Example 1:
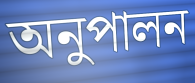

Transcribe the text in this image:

অনুপালন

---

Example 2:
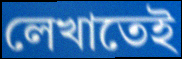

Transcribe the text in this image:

লেখাতেই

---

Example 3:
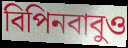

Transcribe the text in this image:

বিপিনবাবুও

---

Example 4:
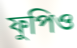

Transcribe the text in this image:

ফুপিও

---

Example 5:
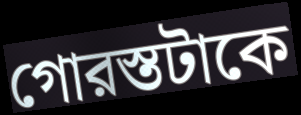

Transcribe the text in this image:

গোরস্তটাকে